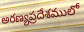
అరణ్యప్రదేశములో